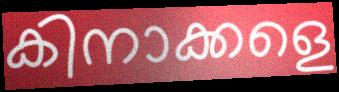
കിനാക്കളെ